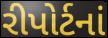
રીપોર્ટનાં